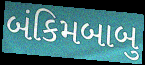
બંકિમબાબુ